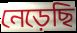
নেড়েছি